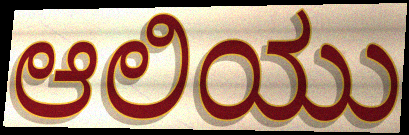
ಆಲಿಯು